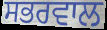
ਸਭਰਵਾਲ